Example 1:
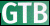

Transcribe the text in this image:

GTB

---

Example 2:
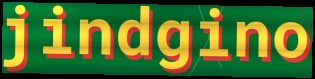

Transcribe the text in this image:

jindgino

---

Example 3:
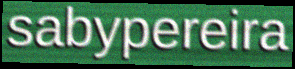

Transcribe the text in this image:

sabypereira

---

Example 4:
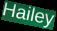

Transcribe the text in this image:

Hailey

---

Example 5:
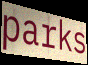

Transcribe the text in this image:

parks